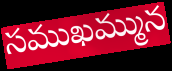
సముఖమ్మున